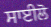
ਸਾਈਲੋ